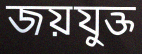
জয়যুক্ত